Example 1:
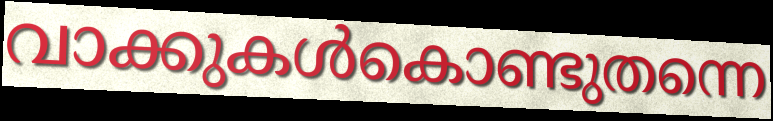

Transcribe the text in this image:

വാക്കുകൾകൊണ്ടുതന്നെ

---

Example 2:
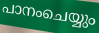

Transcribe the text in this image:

പാനംചെയ്യും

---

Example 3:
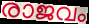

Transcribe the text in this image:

രാജവം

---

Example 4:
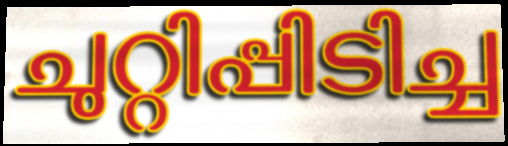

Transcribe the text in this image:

ചുറ്റിപ്പിടിച്ച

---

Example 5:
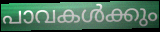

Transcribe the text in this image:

പാവകൾക്കും